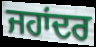
ਜਹਾਂਦਰ